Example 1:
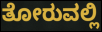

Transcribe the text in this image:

ತೋರುವಲ್ಲಿ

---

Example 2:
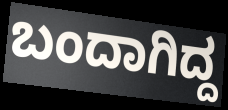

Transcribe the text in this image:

ಬಂದಾಗಿದ್ದ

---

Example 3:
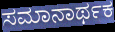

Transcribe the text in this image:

ಸಮಾನಾರ್ಥಕ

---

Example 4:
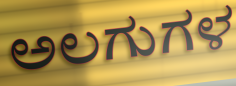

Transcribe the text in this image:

ಅಲಗುಗಳ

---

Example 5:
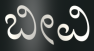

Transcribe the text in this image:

ಬೀವಿ